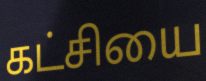
கட்சியை